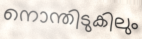
നൊന്തിടുകിലും